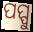
ପପ୍ପୁ